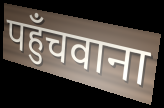
पहुँचवाना